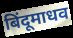
बिंदूमाधव